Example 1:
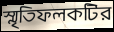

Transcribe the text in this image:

স্মৃতিফলকটির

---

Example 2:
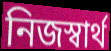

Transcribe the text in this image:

নিজস্বার্থ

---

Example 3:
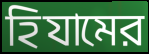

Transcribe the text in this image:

হিযামের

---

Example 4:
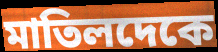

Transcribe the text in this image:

মাতিলদেকে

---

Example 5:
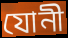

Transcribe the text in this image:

যোনী